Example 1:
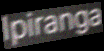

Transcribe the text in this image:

Ipiranga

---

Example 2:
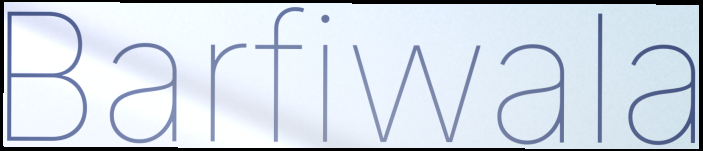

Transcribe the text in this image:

Barfiwala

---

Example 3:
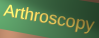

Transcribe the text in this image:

Arthroscopy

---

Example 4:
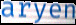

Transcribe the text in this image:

aryen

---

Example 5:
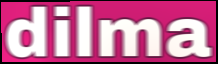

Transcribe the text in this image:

dilma